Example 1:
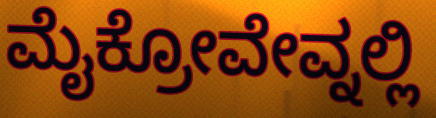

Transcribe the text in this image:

ಮೈಕ್ರೋವೇವ್ನಲ್ಲಿ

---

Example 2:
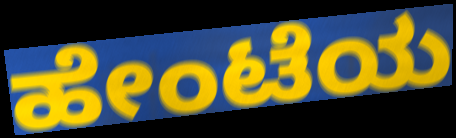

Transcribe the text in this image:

ಹೇಂಟೆಯ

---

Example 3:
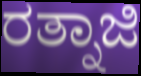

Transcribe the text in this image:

ರತ್ನಾಜಿ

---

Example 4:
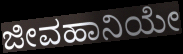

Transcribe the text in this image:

ಜೀವಹಾನಿಯೇ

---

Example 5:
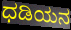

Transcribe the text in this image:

ಧಡಿಯನ